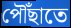
পৌঁছাতে